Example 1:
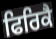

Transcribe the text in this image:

ਫਿਰਿਕੈ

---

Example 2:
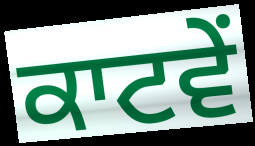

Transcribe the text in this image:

ਕਾਟਵੇਂ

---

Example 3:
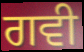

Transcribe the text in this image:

ਗਵੀ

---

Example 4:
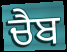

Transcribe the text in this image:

ਚੈਬ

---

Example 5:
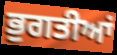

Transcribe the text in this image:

ਭੁਗਤੀਆਂ